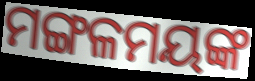
ମଙ୍ଗଳମୟଙ୍କ